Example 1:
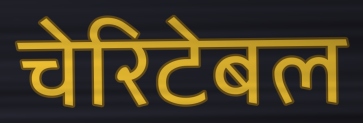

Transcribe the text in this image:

चेरिटेबल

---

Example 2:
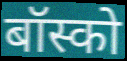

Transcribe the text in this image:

बॉस्को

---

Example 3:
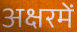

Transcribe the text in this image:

अक्षरमें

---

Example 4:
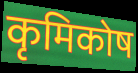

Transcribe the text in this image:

कृमिकोष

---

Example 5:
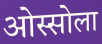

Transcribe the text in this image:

ओस्सोला